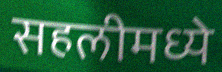
सहलीमध्ये